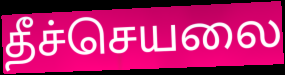
தீச்செயலை